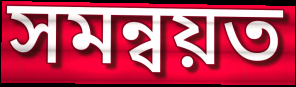
সমন্বয়ত